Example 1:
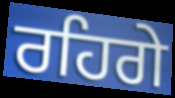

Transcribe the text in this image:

ਰਹਿਗੇ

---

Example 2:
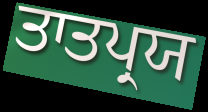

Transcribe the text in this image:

ਤਾਤਪ੍ਰਯ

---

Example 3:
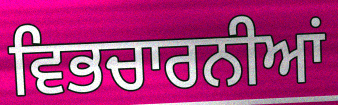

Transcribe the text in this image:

ਵਿਭਚਾਰਨੀਆਂ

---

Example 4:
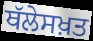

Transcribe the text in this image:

ਥੱਲੇਸਖ਼ਤ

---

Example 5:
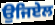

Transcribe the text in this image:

ਉਜਿਏਲ